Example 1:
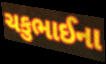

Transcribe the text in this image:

ચકુભાઈના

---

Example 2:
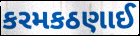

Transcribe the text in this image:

કરમકઠણાઈ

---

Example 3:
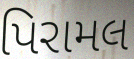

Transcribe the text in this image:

પિરામલ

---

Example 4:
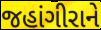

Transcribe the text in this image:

જહાંગીરાને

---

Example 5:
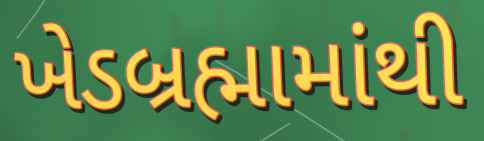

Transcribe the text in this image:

ખેડબ્રહ્મામાંથી